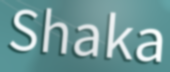
Shaka